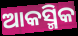
ଆକସ୍ମିକ